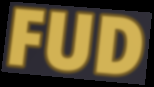
FUD